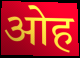
ओह